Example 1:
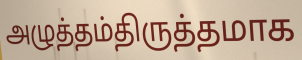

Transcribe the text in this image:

அழுத்தம்திருத்தமாக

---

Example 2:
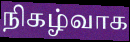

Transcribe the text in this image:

நிகழ்வாக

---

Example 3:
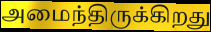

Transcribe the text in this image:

அமைந்திருக்கிறது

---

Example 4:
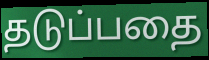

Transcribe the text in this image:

தடுப்பதை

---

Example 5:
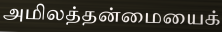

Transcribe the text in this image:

அமிலத்தன்மையைக்